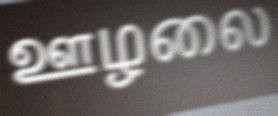
ஊழலை